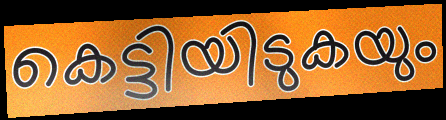
കെട്ടിയിടുകയും